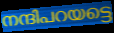
നന്ദിപറയട്ടെ